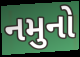
નમુનો